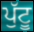
ਪੁੱਟੂ